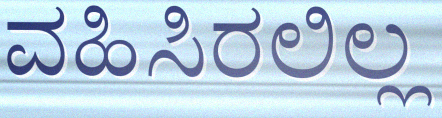
ವಹಿಸಿರಲಿಲ್ಲ